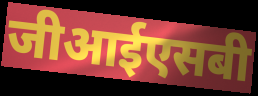
जीआईएसबी